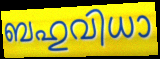
ബഹുവിധാ